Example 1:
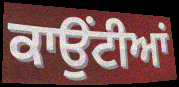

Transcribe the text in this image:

ਕਾਉਂਟੀਆਂ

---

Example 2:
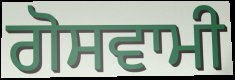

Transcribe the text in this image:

ਗੋਸਵਾਮੀ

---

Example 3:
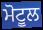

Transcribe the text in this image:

ਮੋਟੂਲ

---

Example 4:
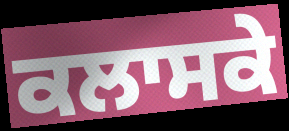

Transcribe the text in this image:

ਕਲਾਸਕੇ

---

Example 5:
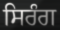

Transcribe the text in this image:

ਸਿਰੰਗ